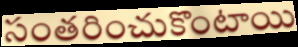
సంతరించుకొంటాయి